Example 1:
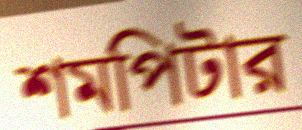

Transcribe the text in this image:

শমপিটার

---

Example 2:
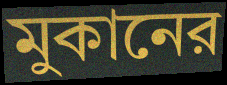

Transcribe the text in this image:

মুকানের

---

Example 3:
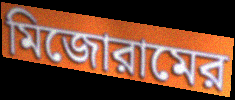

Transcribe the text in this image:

মিজোরামের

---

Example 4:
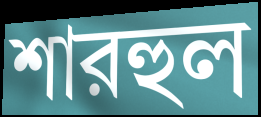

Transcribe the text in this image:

শারহুল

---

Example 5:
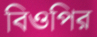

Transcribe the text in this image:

বিওপির